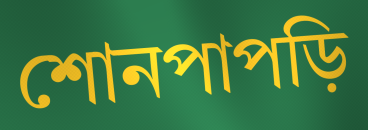
শোনপাপড়ি